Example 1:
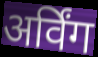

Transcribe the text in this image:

अर्विंग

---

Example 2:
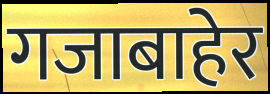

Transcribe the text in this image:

गजाबाहेर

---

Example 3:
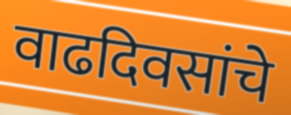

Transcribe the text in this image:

वाढदिवसांचे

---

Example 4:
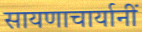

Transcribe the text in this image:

सायणाचार्यानीं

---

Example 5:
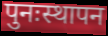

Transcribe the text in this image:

पुनःस्थापन